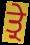
ਤ੍ਰੇ